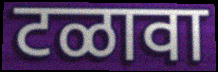
टळावा